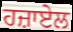
ਹਜ਼ਾਏਲ